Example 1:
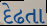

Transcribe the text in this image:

દેઢતા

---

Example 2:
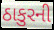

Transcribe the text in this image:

ઠાકુરની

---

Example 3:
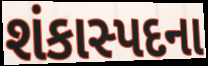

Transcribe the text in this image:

શંકાસ્પદના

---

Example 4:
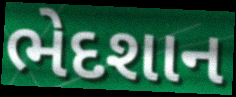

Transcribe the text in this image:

ભેદશાન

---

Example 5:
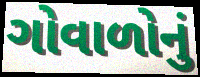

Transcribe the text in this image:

ગોવાળોનું